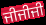
ਜੀਜੀਜੀ